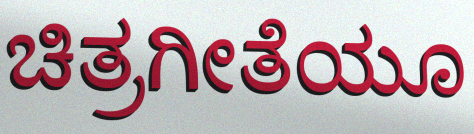
ಚಿತ್ರಗೀತೆಯೂ